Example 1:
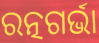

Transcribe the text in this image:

ରତ୍ନଗର୍ଭା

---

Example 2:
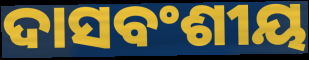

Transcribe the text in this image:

ଦାସବଂଶୀୟ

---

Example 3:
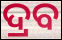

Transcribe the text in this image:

ଦ୍ରବ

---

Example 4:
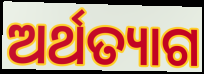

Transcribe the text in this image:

ଅର୍ଥତ୍ୟାଗ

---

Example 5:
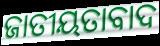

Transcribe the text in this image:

ଜାତୀୟତାବାଦ